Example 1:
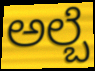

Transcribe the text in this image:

ಅಲ್ಬೆ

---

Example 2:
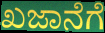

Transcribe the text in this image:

ಖಜಾನೆಗೆ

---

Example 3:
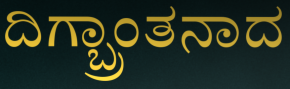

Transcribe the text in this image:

ದಿಗ್ಬ್ರಾಂತನಾದ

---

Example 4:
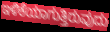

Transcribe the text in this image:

ಇಳಿಕೆಯಾಗುತ್ತಿರುವುದು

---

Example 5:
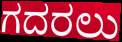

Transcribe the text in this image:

ಗದರಲು